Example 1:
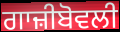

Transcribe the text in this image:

ਗਾਜ਼ੀਬੋਵਲੀ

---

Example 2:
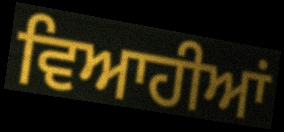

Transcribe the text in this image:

ਵਿਆਹੀਆਂ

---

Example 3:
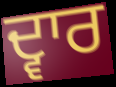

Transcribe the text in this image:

ਦ੍ਵਾਰ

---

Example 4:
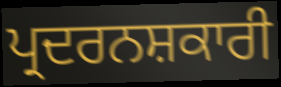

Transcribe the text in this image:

ਪ੍ਰਦਰਨਸ਼ਕਾਰੀ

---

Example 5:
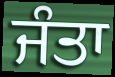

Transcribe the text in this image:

ਜੰਤਾ